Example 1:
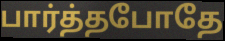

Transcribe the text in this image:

பார்த்தபோதே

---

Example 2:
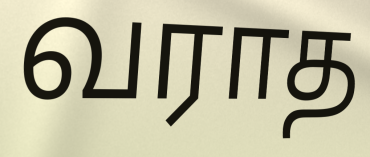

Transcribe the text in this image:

வராத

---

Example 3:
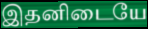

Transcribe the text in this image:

இதனிடையே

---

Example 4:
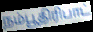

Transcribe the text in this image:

நம்பூதிரிபாட்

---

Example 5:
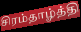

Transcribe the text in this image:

சிரம்தாழ்த்தி